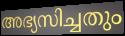
അഭ്യസിച്ചതും